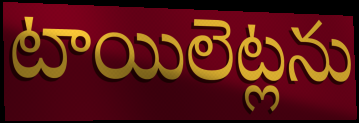
టాయిలెట్లను